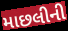
માછલીની